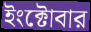
ইংক্টোবার